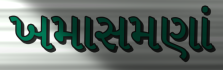
ખમાસમણાં